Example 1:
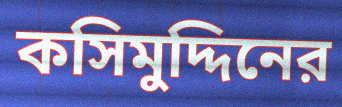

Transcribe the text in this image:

কসিমুদ্দিনের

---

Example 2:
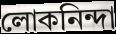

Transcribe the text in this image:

লোকনিন্দা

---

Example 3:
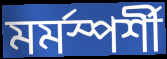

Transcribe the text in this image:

মর্মস্পর্শী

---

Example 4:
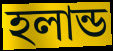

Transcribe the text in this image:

হলান্ড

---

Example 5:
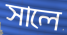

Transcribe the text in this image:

সালে